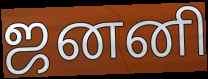
ஜனனி